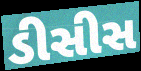
ડીસીસ